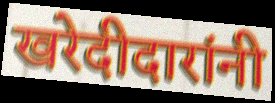
खरेदीदारांनी